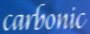
carbonic